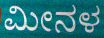
ಮೀನಳ